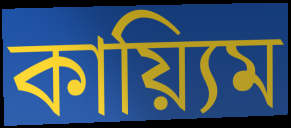
কায়্যিম